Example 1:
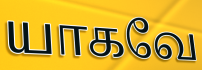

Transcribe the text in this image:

யாகவே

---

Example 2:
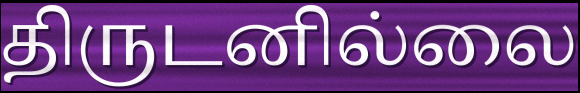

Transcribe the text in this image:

திருடனில்லை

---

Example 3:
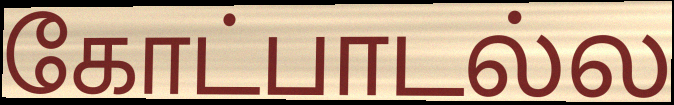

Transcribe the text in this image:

கோட்பாடல்ல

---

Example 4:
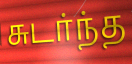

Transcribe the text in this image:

சுடர்ந்த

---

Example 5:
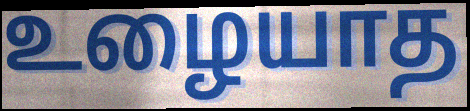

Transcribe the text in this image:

உழையாத